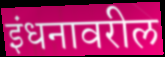
इंधनावरील